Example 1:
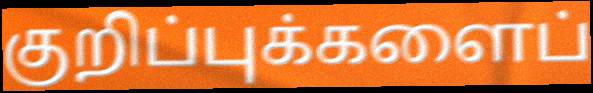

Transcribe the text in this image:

குறிப்புக்களைப்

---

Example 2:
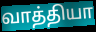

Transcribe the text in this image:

வாத்தியா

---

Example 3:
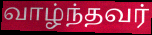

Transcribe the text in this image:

வாழ்ந்தவர்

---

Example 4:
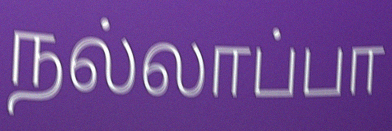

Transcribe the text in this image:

நல்லாப்பா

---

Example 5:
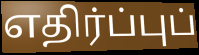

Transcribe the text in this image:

எதிர்ப்புப்